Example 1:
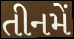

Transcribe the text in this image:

તીનમેં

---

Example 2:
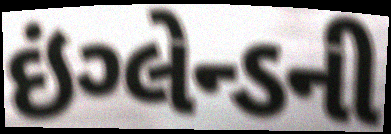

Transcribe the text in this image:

ઇંગ્લેન્ડની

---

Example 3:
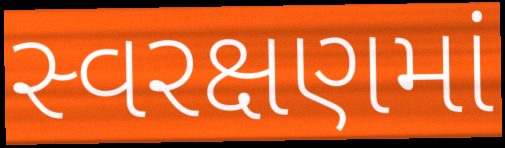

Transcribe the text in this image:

સ્વરક્ષણમાં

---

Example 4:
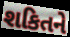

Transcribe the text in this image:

શકિતને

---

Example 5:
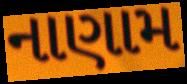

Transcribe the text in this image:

નાણામ